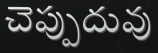
చెప్పుదువు